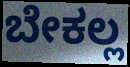
ಬೇಕಲ್ಲ